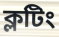
ক্লটিং